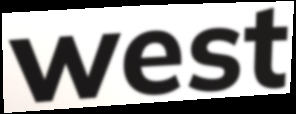
west